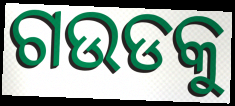
ଗଉଡକୁ